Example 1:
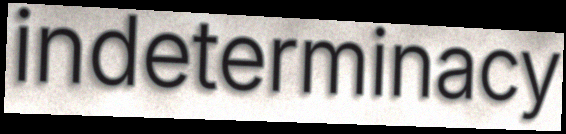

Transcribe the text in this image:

indeterminacy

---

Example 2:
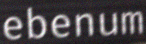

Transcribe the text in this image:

ebenum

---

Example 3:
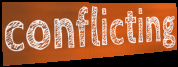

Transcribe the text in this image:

conflicting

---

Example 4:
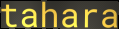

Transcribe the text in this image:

tahara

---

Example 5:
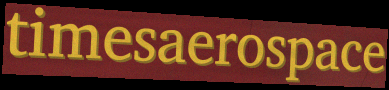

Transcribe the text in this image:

timesaerospace